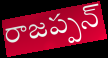
రాజప్పన్